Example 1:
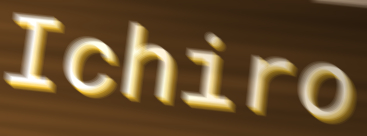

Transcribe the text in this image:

Ichiro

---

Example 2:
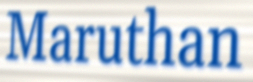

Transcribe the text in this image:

Maruthan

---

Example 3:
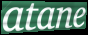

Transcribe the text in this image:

atane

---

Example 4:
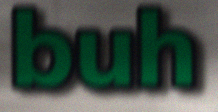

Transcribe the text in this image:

buh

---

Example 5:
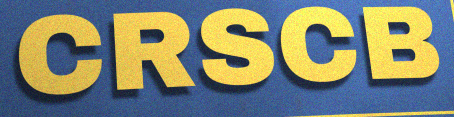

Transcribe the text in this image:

CRSCB